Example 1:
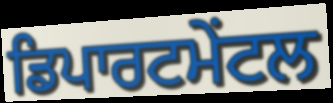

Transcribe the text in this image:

ਡਿਪਾਰਟਮੇਂਟਲ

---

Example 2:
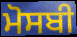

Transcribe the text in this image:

ਮੋਸਬੀ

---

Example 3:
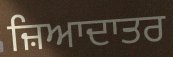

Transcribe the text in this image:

ਜ਼ਿਆਦਾਤਰ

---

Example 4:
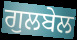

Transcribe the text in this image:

ਗੁਲਬੇਲ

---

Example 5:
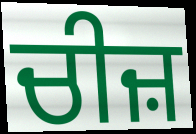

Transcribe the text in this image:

ਚੀਜ਼